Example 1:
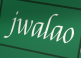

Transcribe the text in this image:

jwalao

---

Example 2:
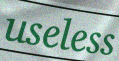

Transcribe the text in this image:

useless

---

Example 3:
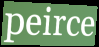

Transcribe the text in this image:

peirce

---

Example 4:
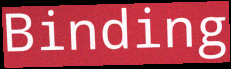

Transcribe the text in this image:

Binding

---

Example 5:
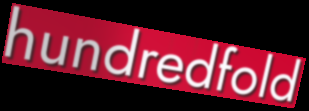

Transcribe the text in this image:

hundredfold